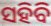
ସହିବି